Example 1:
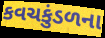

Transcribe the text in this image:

કવચકુંડળના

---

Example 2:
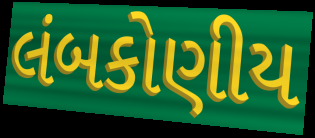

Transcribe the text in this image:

લંબકોણીય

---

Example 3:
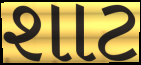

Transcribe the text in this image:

શાટ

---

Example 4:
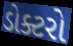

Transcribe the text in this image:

ડોક્ટરો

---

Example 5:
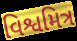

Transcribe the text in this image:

વિશ્વમિત્ર